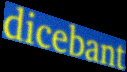
dicebant